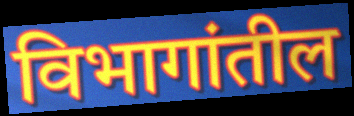
विभागांतील